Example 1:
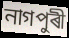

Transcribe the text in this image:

নাগপুৰী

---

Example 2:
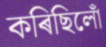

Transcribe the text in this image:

কৰিছিলোঁ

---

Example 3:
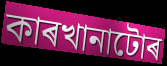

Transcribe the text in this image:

কাৰখানাটোৰ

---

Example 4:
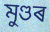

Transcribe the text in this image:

মুণ্ডৰ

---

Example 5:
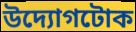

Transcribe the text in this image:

উদ্যোগটোক